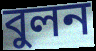
বুলন